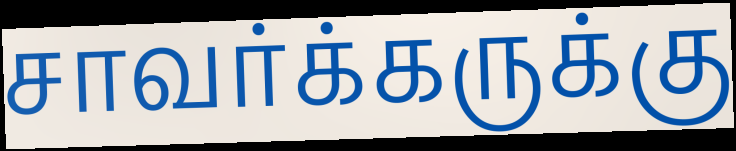
சாவர்க்கருக்கு